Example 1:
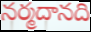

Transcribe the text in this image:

నర్మదానది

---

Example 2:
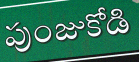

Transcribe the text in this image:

పుంజుకోడి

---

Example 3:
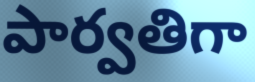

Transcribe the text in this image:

పార్వతిగా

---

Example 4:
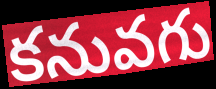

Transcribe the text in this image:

కనువగు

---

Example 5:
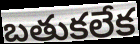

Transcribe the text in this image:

బతుకలేక